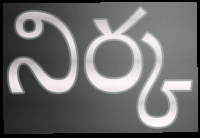
నిర్క